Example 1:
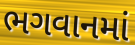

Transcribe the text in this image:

ભગવાનમાં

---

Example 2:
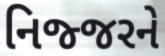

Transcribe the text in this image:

નિજ્જરને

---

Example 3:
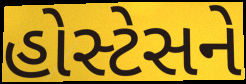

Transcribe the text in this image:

હોસ્ટેસને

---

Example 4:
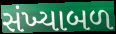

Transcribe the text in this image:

સંખ્યાબળ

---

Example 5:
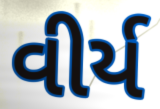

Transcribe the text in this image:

વીર્ય